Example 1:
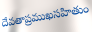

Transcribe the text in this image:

దేవతాప్రముఖసహితుం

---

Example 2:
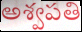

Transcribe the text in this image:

అశ్వపతి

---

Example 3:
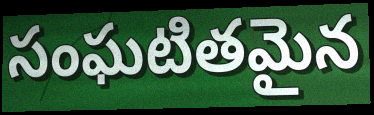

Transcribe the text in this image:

సంఘటితమైన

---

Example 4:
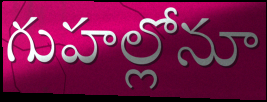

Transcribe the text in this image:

గుహల్లోనూ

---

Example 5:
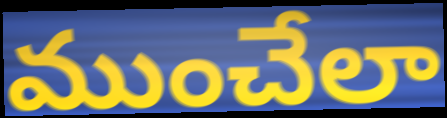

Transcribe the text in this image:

ముంచేలా